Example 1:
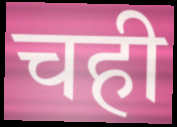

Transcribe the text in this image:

चही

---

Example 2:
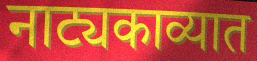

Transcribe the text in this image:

नाट्यकाव्यात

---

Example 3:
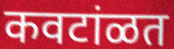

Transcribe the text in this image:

कवटांळत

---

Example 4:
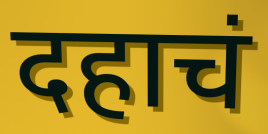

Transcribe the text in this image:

दहाचं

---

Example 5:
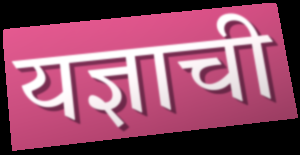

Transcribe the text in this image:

यज्ञाची